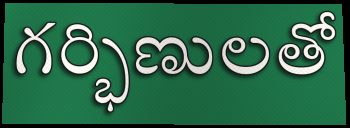
గర్భిణులతో